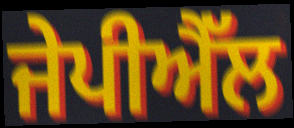
ਜੇਪੀਐੱਲ